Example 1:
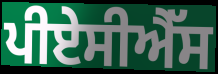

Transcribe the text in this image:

ਪੀਏਸੀਐੱਸ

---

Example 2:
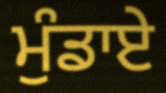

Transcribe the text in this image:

ਮੁੰਡਾਏ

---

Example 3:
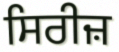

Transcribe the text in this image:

ਸਿਰੀਜ਼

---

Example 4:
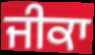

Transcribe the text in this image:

ਜੀਕਾ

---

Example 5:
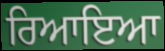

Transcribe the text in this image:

ਰਿਆਇਆ